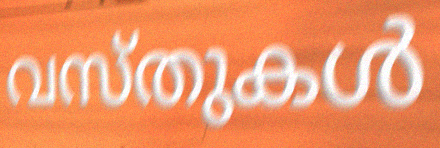
വസ്തുകൾ